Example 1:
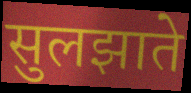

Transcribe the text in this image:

सुलझाते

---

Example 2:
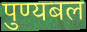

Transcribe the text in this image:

पुण्यबल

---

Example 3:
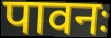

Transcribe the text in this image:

पावनः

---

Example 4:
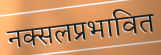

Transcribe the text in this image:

नक्सलप्रभावित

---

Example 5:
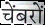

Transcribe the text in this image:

चेंबरों